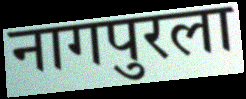
नागपुरला